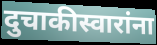
दुचाकीस्वारांना